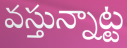
వస్తున్నాట్ట